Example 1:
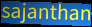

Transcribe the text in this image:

sajanthan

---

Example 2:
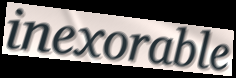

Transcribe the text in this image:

inexorable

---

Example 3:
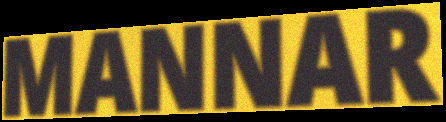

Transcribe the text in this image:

MANNAR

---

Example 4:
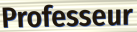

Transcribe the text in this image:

Professeur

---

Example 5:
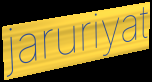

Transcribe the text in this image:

jaruriyat